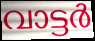
വാട്ടർ